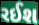
રઈશ